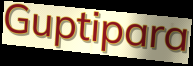
Guptipara